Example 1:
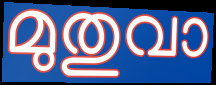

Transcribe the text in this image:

മുതുവാ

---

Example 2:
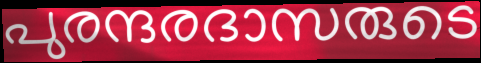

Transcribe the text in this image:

പുരന്ദരദാസരുടെ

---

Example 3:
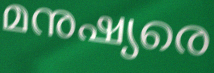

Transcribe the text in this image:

മനുഷ്യരെ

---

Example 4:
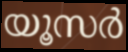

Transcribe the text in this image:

യൂസർ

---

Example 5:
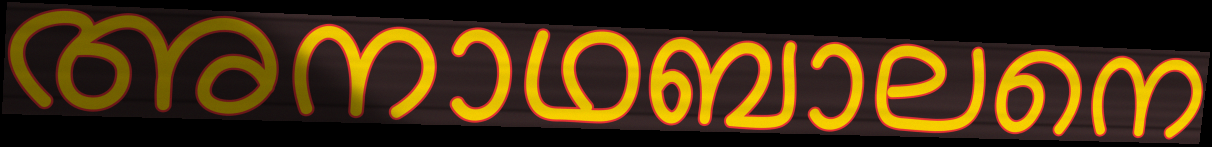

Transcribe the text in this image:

അനാഥബാലനെ